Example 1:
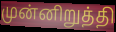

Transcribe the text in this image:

முன்னிறுத்தி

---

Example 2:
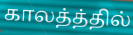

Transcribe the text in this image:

காலத்த்தில்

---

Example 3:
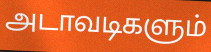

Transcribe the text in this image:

அடாவடிகளும்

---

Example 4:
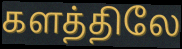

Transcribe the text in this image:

களத்திலே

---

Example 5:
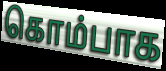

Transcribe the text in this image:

கொம்பாக